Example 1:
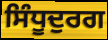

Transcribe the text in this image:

ਸਿੰਧੂਦੁਰਗ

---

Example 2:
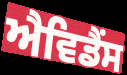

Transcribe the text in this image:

ਐਵਿਡੈਂਸ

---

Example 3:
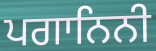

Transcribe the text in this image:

ਪਗਾਨਿਨੀ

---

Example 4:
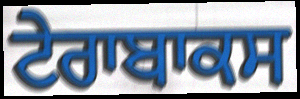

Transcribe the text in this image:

ਟੇਰਾਬਾਕਸ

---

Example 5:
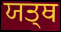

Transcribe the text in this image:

ਯਤ੍ਥ